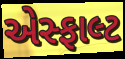
એસ્ફાલ્ટ